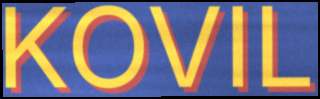
KOVIL